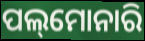
ପଲ୍‌ମୋନାରି